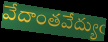
వేదాంతవేద్యుఁ